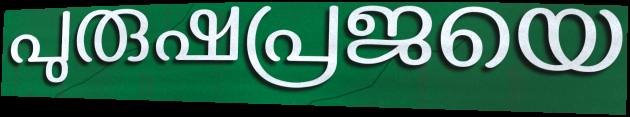
പുരുഷപ്രജയെ